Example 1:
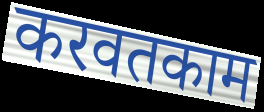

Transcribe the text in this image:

करवतकाम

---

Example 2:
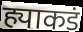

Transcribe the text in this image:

ह्याकडं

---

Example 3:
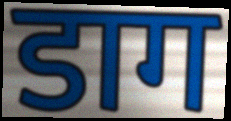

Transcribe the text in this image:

डाग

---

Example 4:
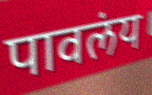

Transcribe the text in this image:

पावलंय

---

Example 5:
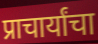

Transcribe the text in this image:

प्राचार्यांचा